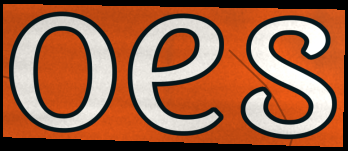
oes